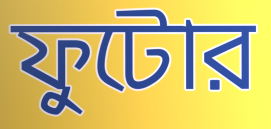
ফুটোর